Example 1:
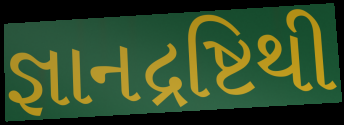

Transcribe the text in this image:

જ્ઞાનદ્રષ્ટિથી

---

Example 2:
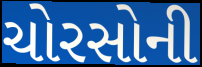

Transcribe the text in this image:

ચોરસોની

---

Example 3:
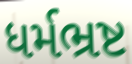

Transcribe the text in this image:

ધર્મભ્રષ્ટ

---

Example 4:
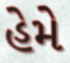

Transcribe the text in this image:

હેમે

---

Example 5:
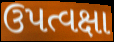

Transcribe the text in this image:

ઉપત્વક્ષા